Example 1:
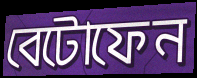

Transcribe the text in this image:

বেটোফেন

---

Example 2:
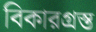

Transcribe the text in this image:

বিকারগ্রস্ত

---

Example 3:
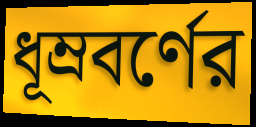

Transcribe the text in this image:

ধূম্রবর্ণের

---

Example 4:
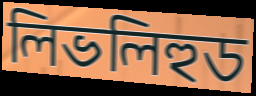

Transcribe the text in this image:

লিভলিহুড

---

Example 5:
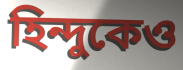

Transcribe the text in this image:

হিন্দুকেও